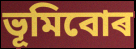
ভূমিবোৰ